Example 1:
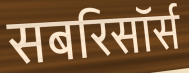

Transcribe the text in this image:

सबरिसॉर्स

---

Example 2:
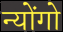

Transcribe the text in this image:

न्योंगो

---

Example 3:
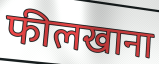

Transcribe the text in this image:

फीलखाना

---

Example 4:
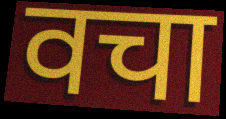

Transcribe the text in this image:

वचा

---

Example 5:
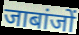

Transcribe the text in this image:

जाबांजों